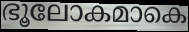
ഭൂലോകമാകെ